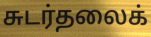
சுடர்தலைக்